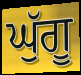
ਘੁੱਗੂ